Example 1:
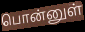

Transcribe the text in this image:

பொன்னுள்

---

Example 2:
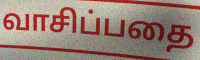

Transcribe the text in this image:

வாசிப்பதை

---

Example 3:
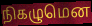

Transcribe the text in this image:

நிகழுமென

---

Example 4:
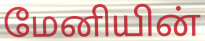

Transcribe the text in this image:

மேனியின்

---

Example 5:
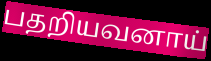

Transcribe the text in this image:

பதறியவனாய்